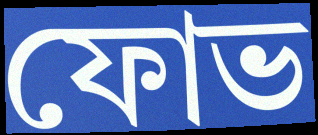
ফোভ